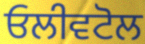
ਓਲੀਵਟੋਲ